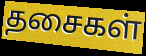
தசைகள்